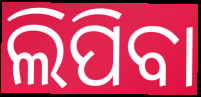
ଲିପିବା